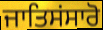
ਜਾਤਿਸਂਸਾਰੋ